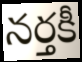
నర్తకీ